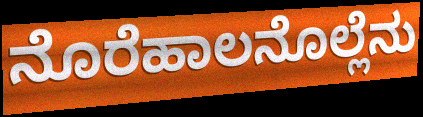
ನೊರೆಹಾಲನೊಲ್ಲೆನು